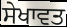
ਸੇਖਾਵਤ